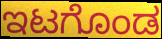
ಇಟಗೊಂಡ